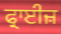
ਫ੍ਰਾਈਜ਼